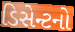
ડિસેન્ટનો